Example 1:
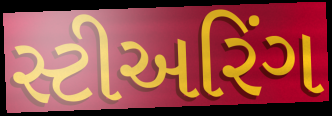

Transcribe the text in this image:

સ્ટીઅરિંગ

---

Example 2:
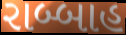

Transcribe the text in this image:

રાબ્બાહ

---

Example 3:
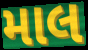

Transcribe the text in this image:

માલ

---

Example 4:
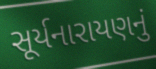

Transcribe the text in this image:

સૂર્યનારાયણનું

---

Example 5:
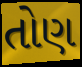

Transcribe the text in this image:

તોણ